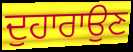
ਦੁਹਾਰਾਉਣ